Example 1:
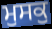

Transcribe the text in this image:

ਮੁਸਕੁ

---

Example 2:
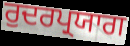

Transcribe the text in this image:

ਰੁਦਰਪ੍ਰਯਾਗ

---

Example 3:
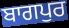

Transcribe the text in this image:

ਬਾਗਪੁਰ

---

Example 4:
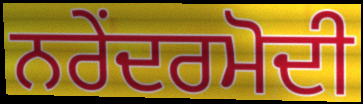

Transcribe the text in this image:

ਨਰੇਂਦਰਮੋਦੀ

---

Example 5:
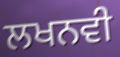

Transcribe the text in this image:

ਲਖਨਵੀ